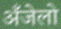
अँजेलो